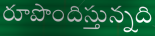
రూపొందిస్తున్నది